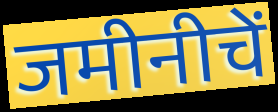
जमीनीचें